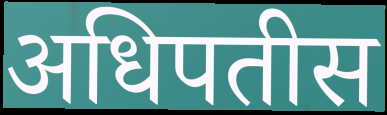
अधिपतीस